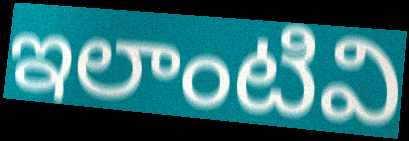
ఇలాంటివి